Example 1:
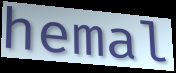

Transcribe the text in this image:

hemal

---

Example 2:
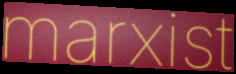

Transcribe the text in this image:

marxist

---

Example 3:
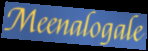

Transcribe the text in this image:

Meenalogale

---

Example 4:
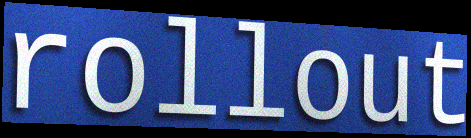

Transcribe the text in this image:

rollout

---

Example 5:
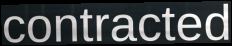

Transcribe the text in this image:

contracted